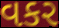
વકર